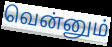
வென்னும்